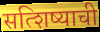
सत्शिष्याची